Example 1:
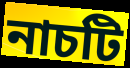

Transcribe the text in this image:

নাচটি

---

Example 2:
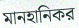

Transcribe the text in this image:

মানহানিকর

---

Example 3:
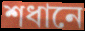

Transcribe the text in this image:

শধানে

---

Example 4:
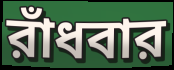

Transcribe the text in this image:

রাঁধবার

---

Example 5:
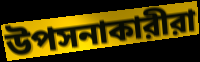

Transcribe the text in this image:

উপসনাকারীরা